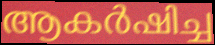
ആകർഷിച്ച